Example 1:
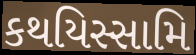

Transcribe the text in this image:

કથયિસ્સામિ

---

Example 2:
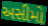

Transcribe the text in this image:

અસીમો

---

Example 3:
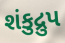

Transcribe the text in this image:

શંકુદ્રુપ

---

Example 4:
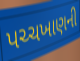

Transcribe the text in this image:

પચ્ચખાણની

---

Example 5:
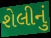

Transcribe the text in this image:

શેલીનું